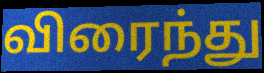
விரைந்து